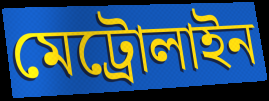
মেট্রোলাইন